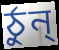
ঠুন্